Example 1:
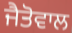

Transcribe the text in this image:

ਜੈਤੋਵਾਲ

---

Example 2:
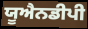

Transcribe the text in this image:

ਯੂਐਨਡੀਪੀ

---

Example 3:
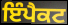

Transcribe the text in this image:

ਇੰਪੈਕਟ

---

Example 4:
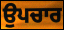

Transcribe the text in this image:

ਉਪਚਾਰ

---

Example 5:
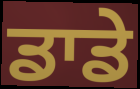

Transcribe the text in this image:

ਡਾਡੇ